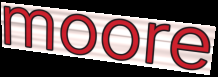
moore